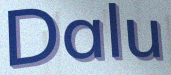
Dalu